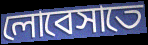
লোবেসাতে